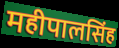
महीपालसिंह